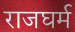
राजघर्म